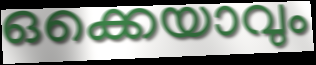
ഒക്കെയാവും